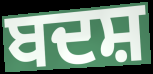
ਬਦਸ਼